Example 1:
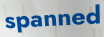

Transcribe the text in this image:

spanned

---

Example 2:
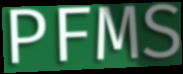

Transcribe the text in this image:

PFMS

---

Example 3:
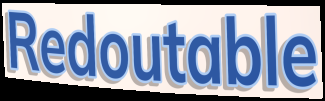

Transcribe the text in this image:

Redoutable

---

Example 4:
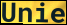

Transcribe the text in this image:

Unie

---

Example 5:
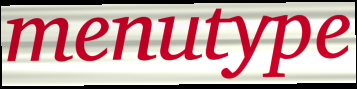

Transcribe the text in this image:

menutype